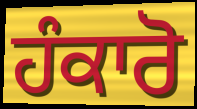
ਹੰਕਾਰੋ